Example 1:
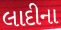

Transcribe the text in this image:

લાદીના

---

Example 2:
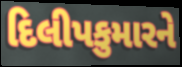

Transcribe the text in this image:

દિલીપકુમારને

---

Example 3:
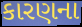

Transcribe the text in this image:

કારણના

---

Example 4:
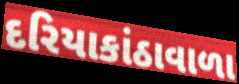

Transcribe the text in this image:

દરિયાકાંઠાવાળા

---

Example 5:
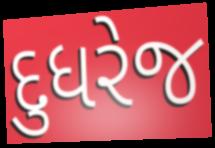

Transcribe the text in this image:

દુધરેજ